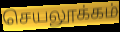
செயலூக்கம்